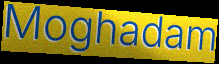
Moghadam